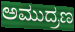
ಅಮುದ್ರಣ